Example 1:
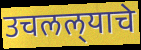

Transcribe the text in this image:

उचलल्याचे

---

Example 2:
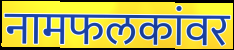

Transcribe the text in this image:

नामफलकांवर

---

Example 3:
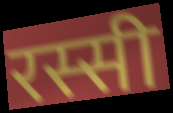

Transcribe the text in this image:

रस्सी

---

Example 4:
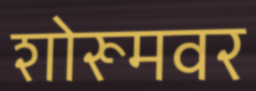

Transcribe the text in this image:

शोरूमवर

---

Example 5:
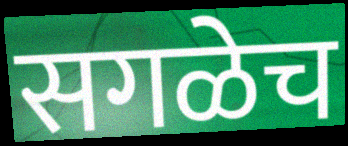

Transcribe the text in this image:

सगळेच